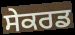
ਸੇਕਰਡ